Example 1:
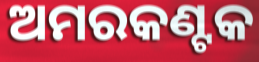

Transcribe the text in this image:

ଅମରକଣ୍ଟକ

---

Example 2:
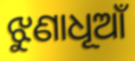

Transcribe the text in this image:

ଝୁଣାଧୂଆଁ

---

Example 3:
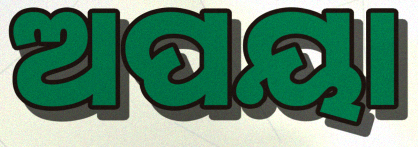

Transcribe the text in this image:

ଅପୟା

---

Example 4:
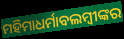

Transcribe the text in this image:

ମହିମାଧର୍ମାବଲମ୍ବୀଙ୍କର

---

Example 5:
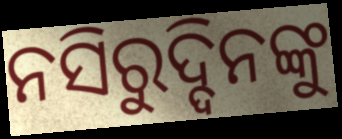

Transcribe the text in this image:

ନସିରୁଦ୍ଦିନଙ୍କୁ